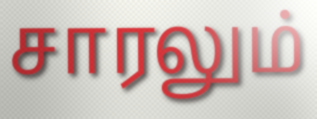
சாரலும்